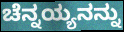
ಚೆನ್ನಯ್ಯನನ್ನು